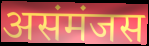
असंमंजस